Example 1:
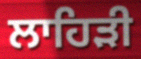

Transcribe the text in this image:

ਲਾਹਿੜੀ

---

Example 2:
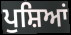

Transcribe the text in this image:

ਪੁਸ਼ਿਆਂ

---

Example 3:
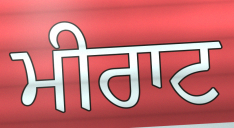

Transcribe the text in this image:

ਮੀਰਾਟ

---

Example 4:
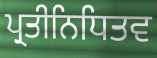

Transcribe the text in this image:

ਪ੍ਰਤੀਨਿਧਿਤਵ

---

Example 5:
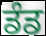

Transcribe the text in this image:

ਡੰਡ